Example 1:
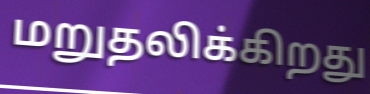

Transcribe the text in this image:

மறுதலிக்கிறது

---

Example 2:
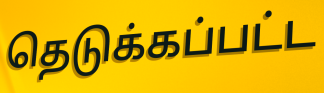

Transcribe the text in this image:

தெடுக்கப்பட்ட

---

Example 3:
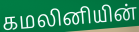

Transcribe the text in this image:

கமலினியின்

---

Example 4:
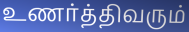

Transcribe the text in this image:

உணர்த்திவரும்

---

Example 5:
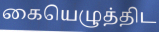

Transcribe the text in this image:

கையெழுத்திட